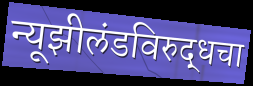
न्यूझीलंडविरुद्धचा